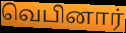
வெபினார்